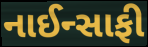
નાઈન્સાફી